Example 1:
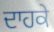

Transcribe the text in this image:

ਦਾਹਕੇ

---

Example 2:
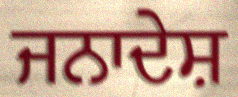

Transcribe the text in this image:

ਜਨਾਦੇਸ਼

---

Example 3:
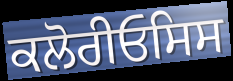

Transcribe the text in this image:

ਕਲੋਰੀਓਸਿਸ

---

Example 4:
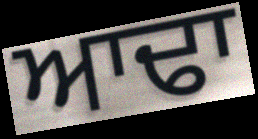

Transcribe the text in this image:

ਆਢਾ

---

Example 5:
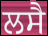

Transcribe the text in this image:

ਲਸੈ